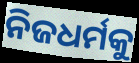
ନିଜଧର୍ମକୁ